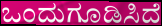
ಒಂದುಗೂಡಿಸಿದೆ